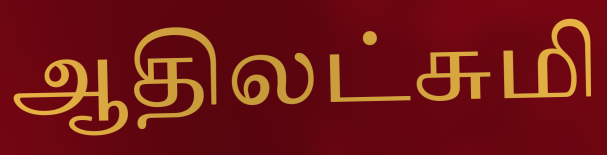
ஆதிலட்சுமி